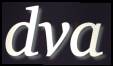
dva